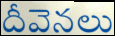
దీవెనలు